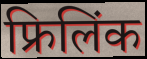
फ्रिलिंक